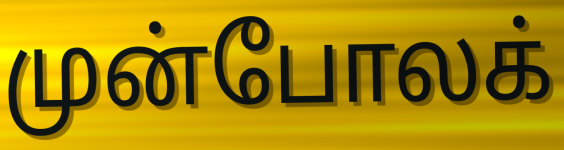
முன்போலக்